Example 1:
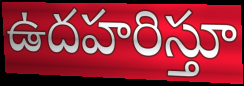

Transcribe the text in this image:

ఉదహరిస్తూ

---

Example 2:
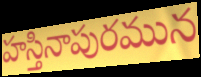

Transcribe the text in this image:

హస్తినాపురమున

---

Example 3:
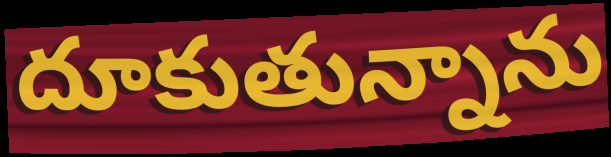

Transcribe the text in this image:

దూకుతున్నాను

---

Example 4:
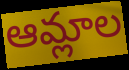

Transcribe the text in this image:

ఆమ్లాల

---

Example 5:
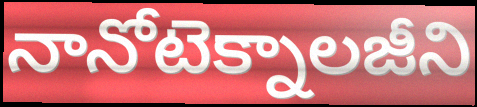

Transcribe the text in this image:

నానోటెక్నాలజీని